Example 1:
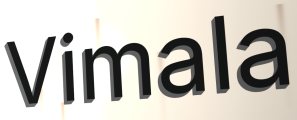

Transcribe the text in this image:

Vimala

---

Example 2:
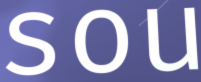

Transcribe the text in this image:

sou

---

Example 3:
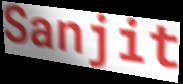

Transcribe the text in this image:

Sanjit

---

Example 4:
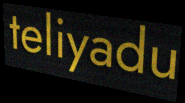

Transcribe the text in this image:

teliyadu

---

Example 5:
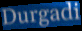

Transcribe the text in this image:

Durgadi